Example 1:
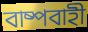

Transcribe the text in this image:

বাষ্পবাহী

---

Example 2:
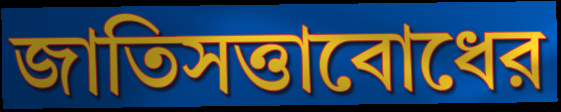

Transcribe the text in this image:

জাতিসত্তাবোধের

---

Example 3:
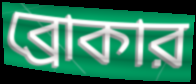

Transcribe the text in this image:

ব্রোকার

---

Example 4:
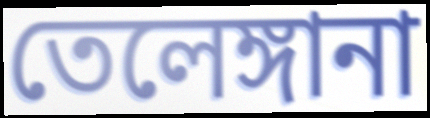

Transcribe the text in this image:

তেলেঙ্গানা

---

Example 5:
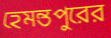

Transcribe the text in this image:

হেমন্তপুরের